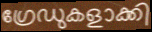
ഗ്രേഡുകളാക്കി